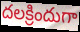
దలక్రిందుగా